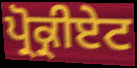
ਪ੍ਰੋਕ੍ਰੀਏਟ